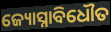
ଜ୍ୟୋସ୍ନାବିଧୌତ